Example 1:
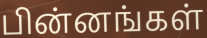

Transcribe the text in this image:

பின்னங்கள்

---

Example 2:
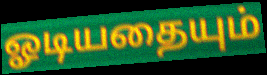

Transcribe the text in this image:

ஓடியதையும்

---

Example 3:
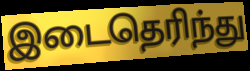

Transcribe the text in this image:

இடைதெரிந்து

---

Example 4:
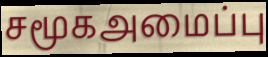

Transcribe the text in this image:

சமூகஅமைப்பு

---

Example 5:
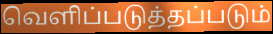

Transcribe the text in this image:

வெளிப்படுத்தப்படும்